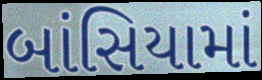
બાંસિયામાં